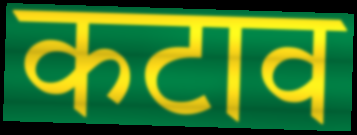
कटाव